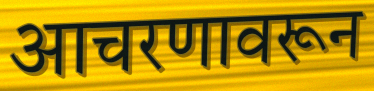
आचरणावरून